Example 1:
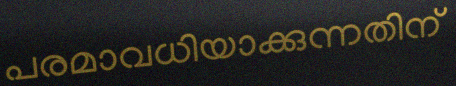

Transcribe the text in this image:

പരമാവധിയാക്കുന്നതിന്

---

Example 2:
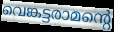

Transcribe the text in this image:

വെങ്കട്ടരാമന്റെ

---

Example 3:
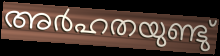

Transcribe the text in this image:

അർഹതയുണ്ടു്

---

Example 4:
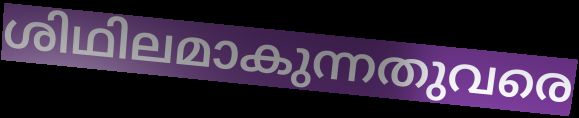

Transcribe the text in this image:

ശിഥിലമാകുന്നതുവരെ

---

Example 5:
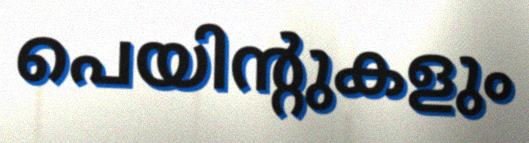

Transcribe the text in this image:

പെയിന്റുകളും